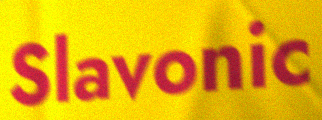
Slavonic